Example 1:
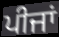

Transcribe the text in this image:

ਪੀਜਾਂ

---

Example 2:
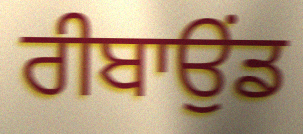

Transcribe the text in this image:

ਰੀਬਾਉਂਡ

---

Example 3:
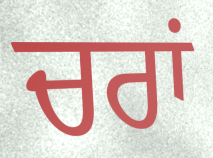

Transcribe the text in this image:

ਚਰਾਂ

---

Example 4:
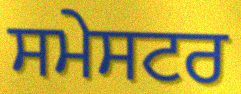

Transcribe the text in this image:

ਸਮੇਸਟਰ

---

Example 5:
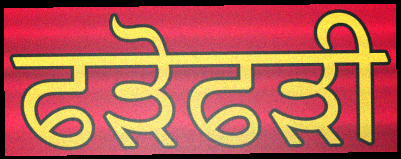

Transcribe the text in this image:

ਫੜੋਫੜੀ